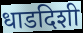
धाडदिशी